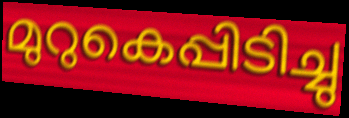
മുറുകെപ്പിടിച്ചു